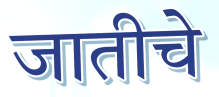
जातीचे